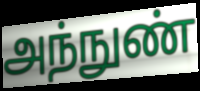
அந்நுண்